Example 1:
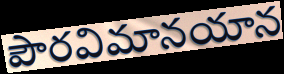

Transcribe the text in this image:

పౌరవిమానయాన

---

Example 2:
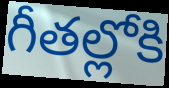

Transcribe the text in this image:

గీతల్లోకి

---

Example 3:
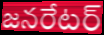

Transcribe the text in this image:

జనరేటర్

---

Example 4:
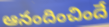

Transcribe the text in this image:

ఆనందించిందే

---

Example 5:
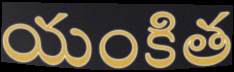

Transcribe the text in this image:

యంకిత